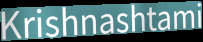
Krishnashtami